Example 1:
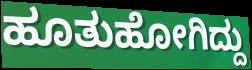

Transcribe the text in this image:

ಹೂತುಹೋಗಿದ್ದು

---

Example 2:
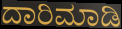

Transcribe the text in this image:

ದಾರಿಮಾಡಿ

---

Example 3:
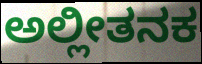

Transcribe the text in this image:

ಅಲ್ಲೀತನಕ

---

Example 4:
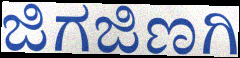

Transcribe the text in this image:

ಜಿಗಜಿಣಗಿ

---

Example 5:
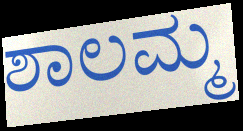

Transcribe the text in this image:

ಶಾಲಮ್ಮ